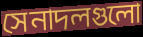
সেনাদলগুলো